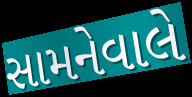
સામનેવાલે